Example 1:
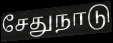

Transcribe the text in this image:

சேதுநாடு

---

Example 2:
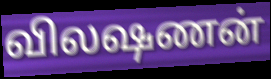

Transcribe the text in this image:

விலஷணன்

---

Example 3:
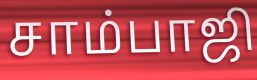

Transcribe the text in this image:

சாம்பாஜி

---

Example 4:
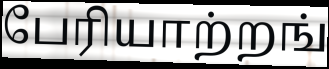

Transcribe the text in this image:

பேரியாற்றங்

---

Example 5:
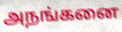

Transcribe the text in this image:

அநங்கனை